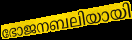
ഭോജനബലിയായി